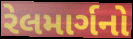
રેલમાર્ગનો